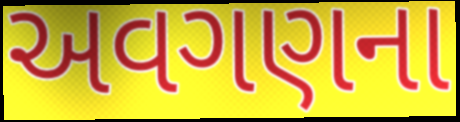
અવગણના